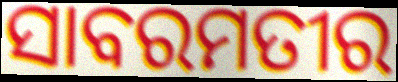
ସାବରମତୀର